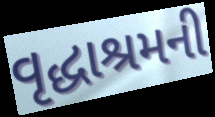
વૃદ્ધાશ્રમની